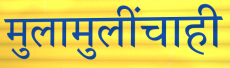
मुलामुलींचाही